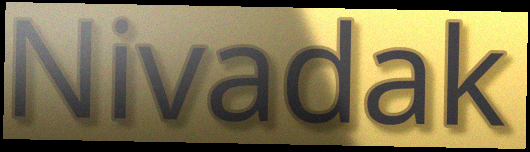
Nivadak